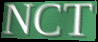
NCT